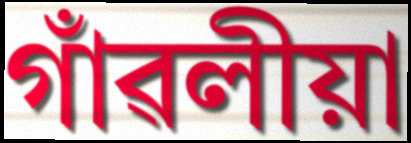
গাঁৱলীয়া